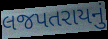
લજપતરાયનું